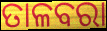
ତାଳବରା